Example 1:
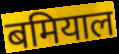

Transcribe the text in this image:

बमियाल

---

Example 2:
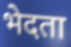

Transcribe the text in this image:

भेदता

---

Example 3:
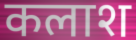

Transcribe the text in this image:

कलाश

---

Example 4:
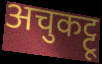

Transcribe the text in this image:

अचुकट्टू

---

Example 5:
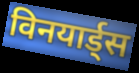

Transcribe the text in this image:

विनयार्ड्स